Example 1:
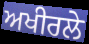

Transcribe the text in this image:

ਅਖੀਰਲੇ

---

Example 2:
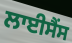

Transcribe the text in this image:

ਲਾਈਸੈਂਸ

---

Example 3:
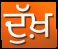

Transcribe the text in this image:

ਦੁੱਖ਼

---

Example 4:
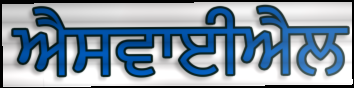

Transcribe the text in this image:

ਐਸਵਾਈਐਲ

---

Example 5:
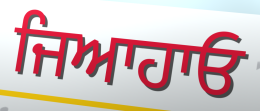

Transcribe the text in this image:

ਜਿਆਹਾਓ